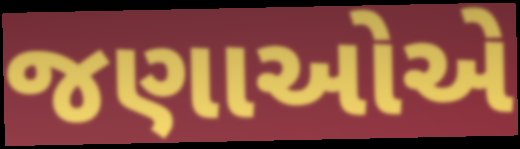
જણાઓએ